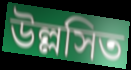
উল্লসিত